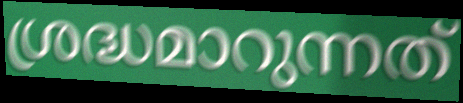
ശ്രദ്ധമാറുന്നത്